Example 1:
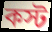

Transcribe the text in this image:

কস্ট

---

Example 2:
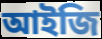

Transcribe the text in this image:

আইজি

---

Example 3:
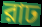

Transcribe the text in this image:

রাঢ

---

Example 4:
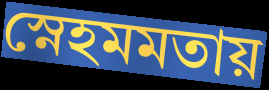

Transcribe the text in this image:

স্নেহমমতায়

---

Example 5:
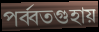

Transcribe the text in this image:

পর্ব্বতগুহায়